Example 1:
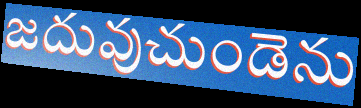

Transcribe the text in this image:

జదువుచుండెను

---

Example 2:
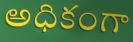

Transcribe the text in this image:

అధికంగా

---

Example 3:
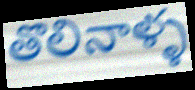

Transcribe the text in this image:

తొలినాళ్ళ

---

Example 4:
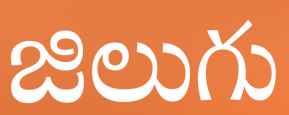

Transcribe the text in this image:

జిలుగు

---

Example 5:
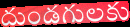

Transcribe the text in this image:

దుండగులకు